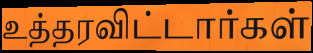
உத்தரவிட்டார்கள்